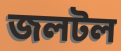
জলটল